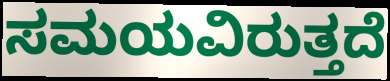
ಸಮಯವಿರುತ್ತದೆ